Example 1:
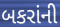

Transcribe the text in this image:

બકરાંની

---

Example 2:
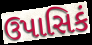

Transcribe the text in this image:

ઉપાસિકં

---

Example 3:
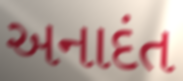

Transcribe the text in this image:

અનાદંત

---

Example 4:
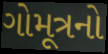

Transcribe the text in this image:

ગોમૂત્રનો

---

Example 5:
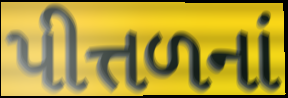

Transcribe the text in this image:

પીત્તળનાં